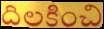
దిలకించి